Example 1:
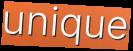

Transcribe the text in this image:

unique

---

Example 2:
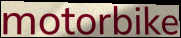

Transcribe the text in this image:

motorbike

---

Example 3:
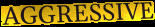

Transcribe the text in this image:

AGGRESSIVE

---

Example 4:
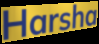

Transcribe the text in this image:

Harsha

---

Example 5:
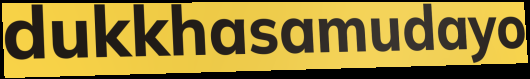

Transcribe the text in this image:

dukkhasamudayo